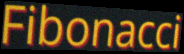
Fibonacci